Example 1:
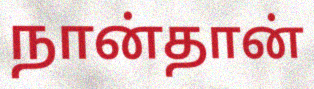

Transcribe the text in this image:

நான்தான்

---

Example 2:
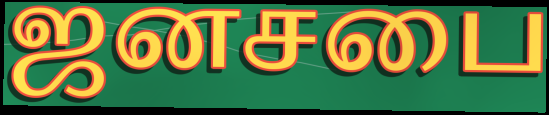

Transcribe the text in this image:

ஜனசபை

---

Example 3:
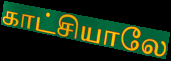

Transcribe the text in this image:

காட்சியாலே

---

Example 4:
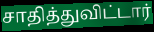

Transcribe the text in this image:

சாதித்துவிட்டார்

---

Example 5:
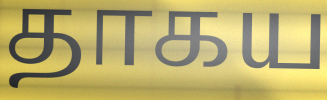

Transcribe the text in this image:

தாகய